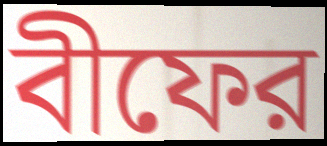
বীফের